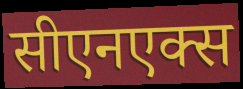
सीएनएक्स